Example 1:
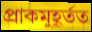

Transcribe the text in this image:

প্ৰাকমুহূৰ্তত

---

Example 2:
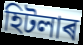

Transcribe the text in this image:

হিটলাৰ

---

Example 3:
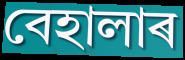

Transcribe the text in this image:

বেহালাৰ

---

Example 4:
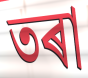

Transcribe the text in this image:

তৰা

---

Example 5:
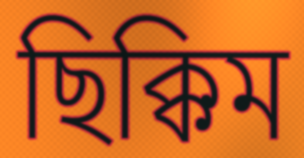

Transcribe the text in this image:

ছিক্কিম